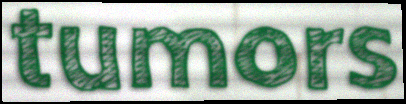
tumors